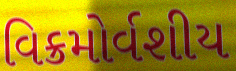
વિક્રમોર્વશીય